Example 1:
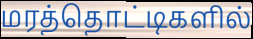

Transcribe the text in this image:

மரத்தொட்டிகளில்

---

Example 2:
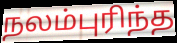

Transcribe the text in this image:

நலம்புரிந்த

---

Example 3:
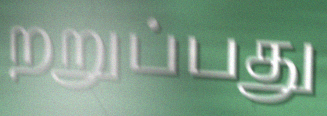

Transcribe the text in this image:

றறுப்பது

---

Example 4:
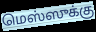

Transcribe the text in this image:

மெஸ்ஸுக்கு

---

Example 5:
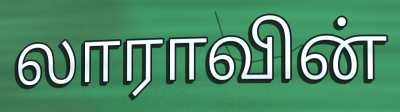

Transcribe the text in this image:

லாராவின்